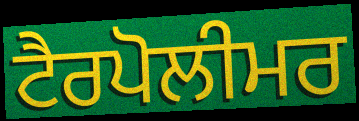
ਟੈਰਪੋਲੀਮਰ